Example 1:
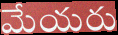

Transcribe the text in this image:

మేయరు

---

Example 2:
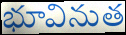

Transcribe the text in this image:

భూవినుత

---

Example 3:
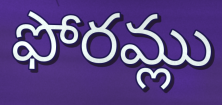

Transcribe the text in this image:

ఫోరమ్లు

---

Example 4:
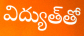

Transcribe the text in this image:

విద్యుత్‌తో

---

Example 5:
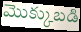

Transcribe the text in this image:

మొక్కుబడి